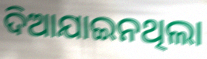
ଦିଆଯାଇନଥିଲା